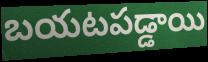
బయటపడ్డాయి